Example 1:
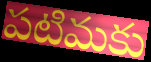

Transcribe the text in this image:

పటిమకు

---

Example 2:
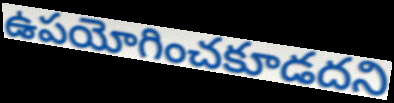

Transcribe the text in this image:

ఉపయోగించకూడదని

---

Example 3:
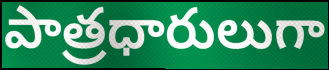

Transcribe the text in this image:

పాత్రధారులుగా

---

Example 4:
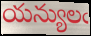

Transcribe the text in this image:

యన్యులఁ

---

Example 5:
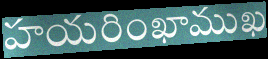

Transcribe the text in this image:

హయరింఖాముఖ